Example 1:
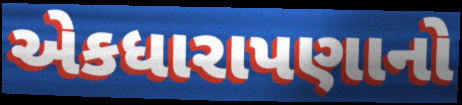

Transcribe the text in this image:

એકધારાપણાનો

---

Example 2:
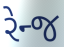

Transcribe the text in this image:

રેન્જ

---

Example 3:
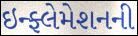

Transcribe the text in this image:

ઇન્ફ્લેમેશનની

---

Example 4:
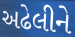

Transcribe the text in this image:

અઢેલીને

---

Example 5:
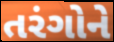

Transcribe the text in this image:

તરંગોને